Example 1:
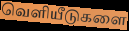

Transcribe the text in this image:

வெளியீடுகளை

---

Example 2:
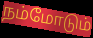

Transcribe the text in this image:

நம்மோடும்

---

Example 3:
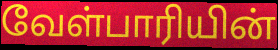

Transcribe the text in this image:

வேள்பாரியின்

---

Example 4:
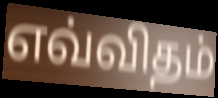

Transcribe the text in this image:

எவ்விதம்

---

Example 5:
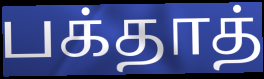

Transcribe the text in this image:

பக்தாத்